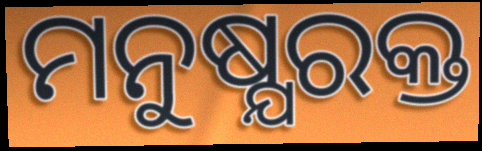
ମନୁଷ୍ଯରକ୍ତ